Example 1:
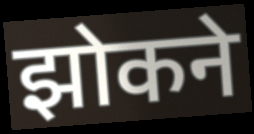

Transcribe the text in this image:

झोकने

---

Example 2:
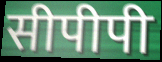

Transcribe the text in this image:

सीपीपी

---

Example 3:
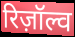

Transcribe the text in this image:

रिज़ॉल्व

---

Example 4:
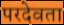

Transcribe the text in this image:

परदेवता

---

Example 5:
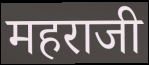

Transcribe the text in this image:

महराजी